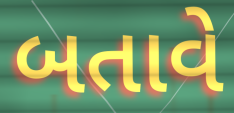
બતાવે